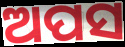
ଅପସ